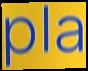
pla